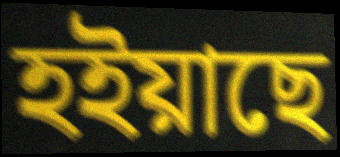
হইয়াছে